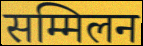
सम्मिलन